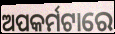
ଅପକର୍ମଟାରେ